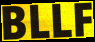
BLLF